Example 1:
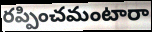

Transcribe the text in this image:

రప్పించమంటారా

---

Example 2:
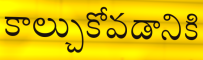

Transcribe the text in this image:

కాల్చుకోవడానికి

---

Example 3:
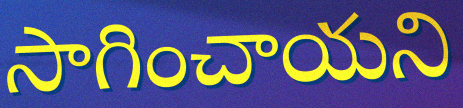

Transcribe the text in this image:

సాగించాయని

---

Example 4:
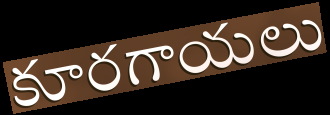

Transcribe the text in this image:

కూరగాయలు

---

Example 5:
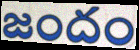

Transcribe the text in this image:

జందం